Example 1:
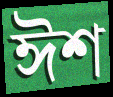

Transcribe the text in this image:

ঈশ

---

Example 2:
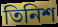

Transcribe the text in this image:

তিনিশ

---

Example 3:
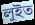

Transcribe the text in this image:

লুইত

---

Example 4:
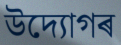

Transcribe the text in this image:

উদ্যোগৰ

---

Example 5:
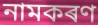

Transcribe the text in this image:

নামকৰণ